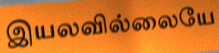
இயலவில்லையே